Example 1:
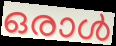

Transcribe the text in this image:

ഒരാൾ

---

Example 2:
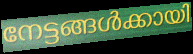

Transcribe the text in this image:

നേട്ടങ്ങൾക്കായി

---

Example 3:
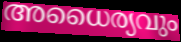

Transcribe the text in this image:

അധൈര്യവും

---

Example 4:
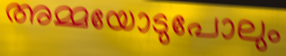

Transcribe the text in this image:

അമ്മയോടുപോലും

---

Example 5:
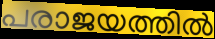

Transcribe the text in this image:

പരാജയത്തിൽ